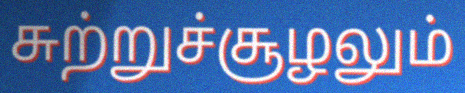
சுற்றுச்சூழலும்